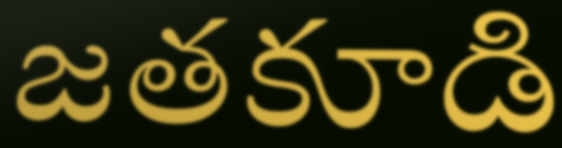
జతకూడి